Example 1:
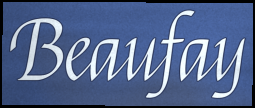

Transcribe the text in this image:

Beaufay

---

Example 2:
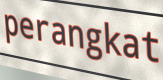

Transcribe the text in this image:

perangkat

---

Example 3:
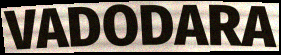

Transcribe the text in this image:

VADODARA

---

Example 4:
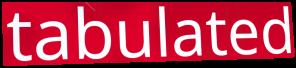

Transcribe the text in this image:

tabulated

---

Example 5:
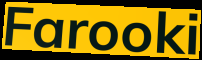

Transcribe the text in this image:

Farooki